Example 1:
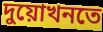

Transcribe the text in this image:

দুয়োখনতে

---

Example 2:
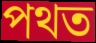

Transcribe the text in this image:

পথত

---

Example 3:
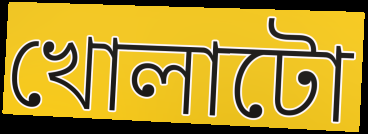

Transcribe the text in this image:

খোলাটো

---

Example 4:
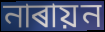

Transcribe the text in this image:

নাৰায়ন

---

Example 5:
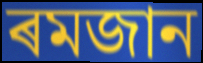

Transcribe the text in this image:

ৰমজান